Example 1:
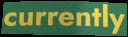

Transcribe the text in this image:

currently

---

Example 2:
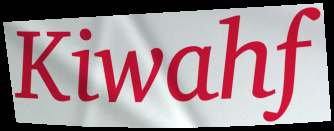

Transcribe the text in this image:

Kiwahf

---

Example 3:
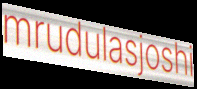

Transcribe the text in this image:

mrudulasjoshi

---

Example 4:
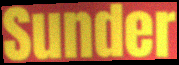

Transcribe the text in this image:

Sunder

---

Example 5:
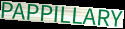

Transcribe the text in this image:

PAPPILLARY